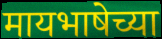
मायभाषेच्या